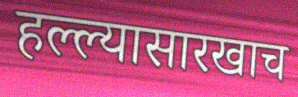
हल्ल्यासारखाच